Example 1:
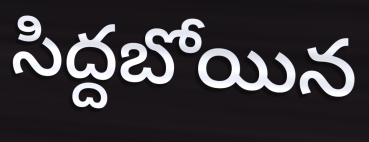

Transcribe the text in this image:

సిద్దబోయిన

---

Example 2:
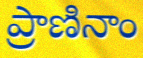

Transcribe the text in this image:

ప్రాణినాం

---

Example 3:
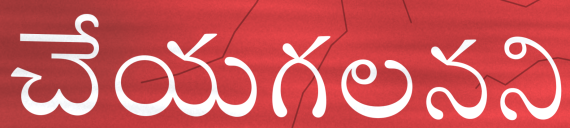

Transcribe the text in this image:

చేయగలనని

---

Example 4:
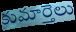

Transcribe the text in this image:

కుమార్తెలు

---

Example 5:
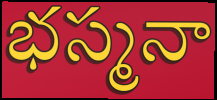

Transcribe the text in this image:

భస్మనా